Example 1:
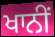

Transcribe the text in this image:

ਖਾਨੀਂ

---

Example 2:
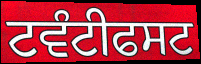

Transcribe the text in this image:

ਟਵੰਟੀਫਸਟ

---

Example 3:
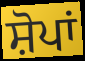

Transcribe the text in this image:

ਸ਼ੋਪਾਂ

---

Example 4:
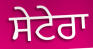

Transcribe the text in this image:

ਸੇਟੇਰਾ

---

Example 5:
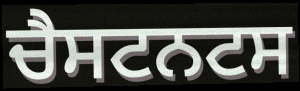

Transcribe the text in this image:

ਚੈਸਟਨਟਸ